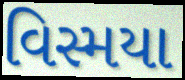
વિસ્મયા